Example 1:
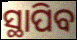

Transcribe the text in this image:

ସ୍ଥାପିବ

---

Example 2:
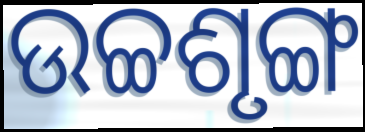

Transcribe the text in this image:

ଉଚ୍ଚଶୃଙ୍ଗ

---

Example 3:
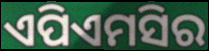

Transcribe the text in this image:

ଏପିଏମସିର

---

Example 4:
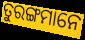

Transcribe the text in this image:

ତୁରଙ୍ଗମାନେ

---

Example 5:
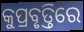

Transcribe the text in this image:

କୁପ୍ରବୃତ୍ତିରେ